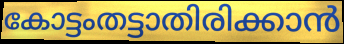
കോട്ടംതട്ടാതിരിക്കാൻ